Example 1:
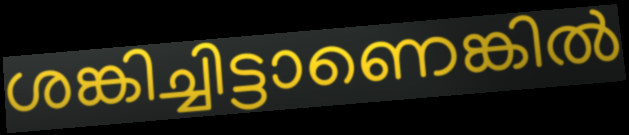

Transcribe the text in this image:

ശങ്കിച്ചിട്ടാണെങ്കിൽ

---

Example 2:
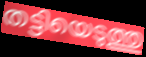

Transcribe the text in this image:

തട്ടിയെടുത്തു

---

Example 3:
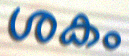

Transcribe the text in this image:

ശകം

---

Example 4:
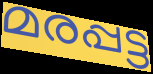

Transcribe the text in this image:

മരപ്പട്ട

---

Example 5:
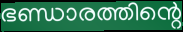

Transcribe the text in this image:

ഭണ്ഡാരത്തിന്റെ